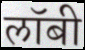
लॉबी